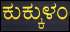
ಕುಕ್ಕುಳಂ